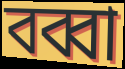
বব্বা